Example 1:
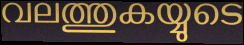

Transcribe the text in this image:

വലത്തുകയ്യുടെ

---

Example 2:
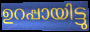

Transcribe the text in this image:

ഉറപ്പായിട്ടു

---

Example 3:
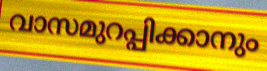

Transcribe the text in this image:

വാസമുറപ്പിക്കാനും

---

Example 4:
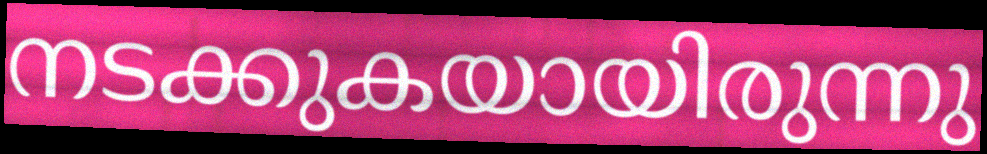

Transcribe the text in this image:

നടക്കുകയായിരുന്നു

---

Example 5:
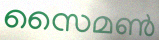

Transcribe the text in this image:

സൈമൺ